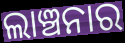
ଲାଞ୍ଚନାର